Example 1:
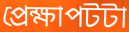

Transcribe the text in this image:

প্রেক্ষাপটটা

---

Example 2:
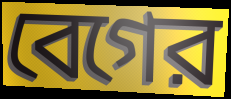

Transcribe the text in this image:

বেগের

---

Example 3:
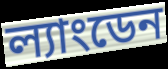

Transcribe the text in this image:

ল্যাংডেন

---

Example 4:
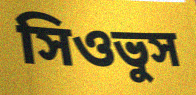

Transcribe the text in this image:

সিওভুস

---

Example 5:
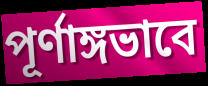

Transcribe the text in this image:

পূর্ণাঙ্গভাবে